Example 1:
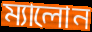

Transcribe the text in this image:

ম্যালোন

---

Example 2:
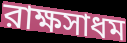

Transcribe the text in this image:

রাক্ষসাধম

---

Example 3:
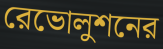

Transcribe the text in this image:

রেভোলুশনের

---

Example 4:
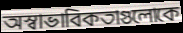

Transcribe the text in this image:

অস্বাভাবিকতাগুলোকে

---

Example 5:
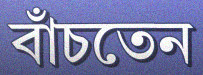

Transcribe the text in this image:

বাঁচতেন